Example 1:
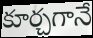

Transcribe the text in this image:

కూర్చగానే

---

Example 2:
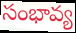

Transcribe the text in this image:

సంభావ్య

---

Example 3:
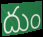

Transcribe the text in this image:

దుం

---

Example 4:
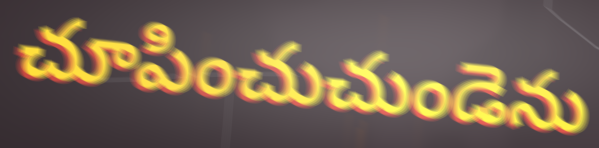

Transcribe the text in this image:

చూపించుచుండెను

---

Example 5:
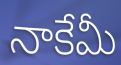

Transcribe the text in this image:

నాకేమీ